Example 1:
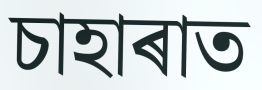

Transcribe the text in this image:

চাহাৰাত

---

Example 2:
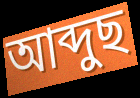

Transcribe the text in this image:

আব্দুছ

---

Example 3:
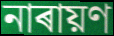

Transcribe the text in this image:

নাৰায়ণ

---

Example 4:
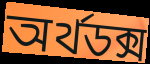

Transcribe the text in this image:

অৰ্থডক্স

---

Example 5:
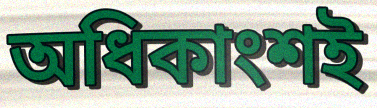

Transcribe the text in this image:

অধিকাংশই